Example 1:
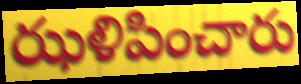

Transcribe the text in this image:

ఝళిపించారు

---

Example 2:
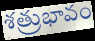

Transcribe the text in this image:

శత్రుభావం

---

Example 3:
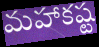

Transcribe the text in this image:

మహాకష్ట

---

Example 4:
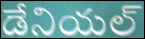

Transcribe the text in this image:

డేనియల్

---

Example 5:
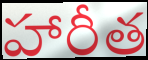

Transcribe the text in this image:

హారీత